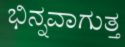
ಭಿನ್ನವಾಗುತ್ತ